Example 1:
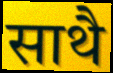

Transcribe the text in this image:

साथै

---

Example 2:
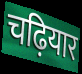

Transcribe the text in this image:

चढ़ियार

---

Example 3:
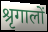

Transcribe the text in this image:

श्रृगालों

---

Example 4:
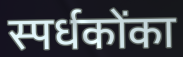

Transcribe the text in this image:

स्पर्धकोंका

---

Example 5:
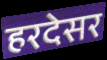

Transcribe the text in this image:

हरदेसर